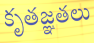
కృతజ్ఞతలు